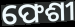
ଫେଶୀ